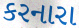
કરનારા